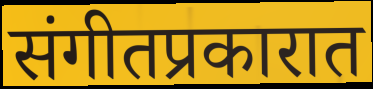
संगीतप्रकारात